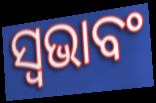
ସ୍ଵଭାବଂ